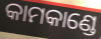
କାମକାଣ୍ଡେ